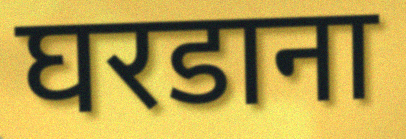
घरडाना